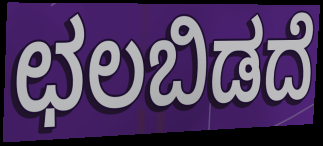
ಛಲಬಿಡದೆ